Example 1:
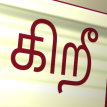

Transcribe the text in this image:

கிறீ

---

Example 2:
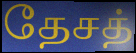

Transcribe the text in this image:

தேசத்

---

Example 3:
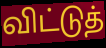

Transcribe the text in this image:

விட்டுத்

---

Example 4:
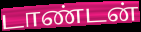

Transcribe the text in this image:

டாண்டன்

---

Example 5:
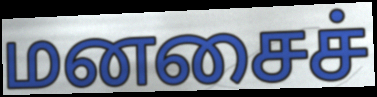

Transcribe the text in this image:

மனசைச்